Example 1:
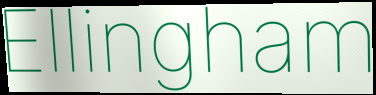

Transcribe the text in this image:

Ellingham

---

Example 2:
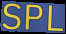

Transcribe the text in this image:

SPL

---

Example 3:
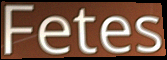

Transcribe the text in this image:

Fetes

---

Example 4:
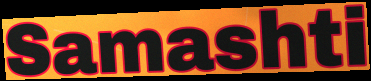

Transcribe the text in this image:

Samashti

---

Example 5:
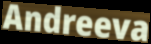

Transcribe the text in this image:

Andreeva